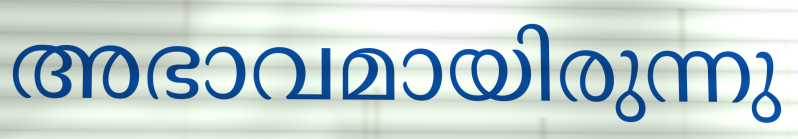
അഭാവമായിരുന്നു